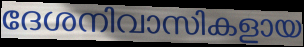
ദേശനിവാസികളായ